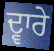
ਦ੍ਵਾਰੇ